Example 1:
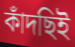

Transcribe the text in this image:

কাঁদছিই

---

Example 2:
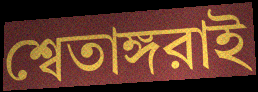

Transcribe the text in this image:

শ্বেতাঙ্গরাই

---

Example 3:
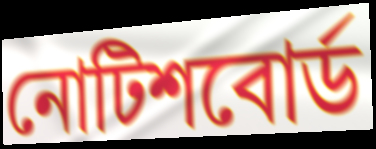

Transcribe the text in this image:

নোটিশবোর্ড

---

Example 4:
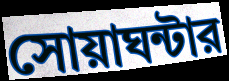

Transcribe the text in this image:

সোয়াঘন্টার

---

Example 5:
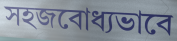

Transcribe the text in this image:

সহজবোধ্যভাবে